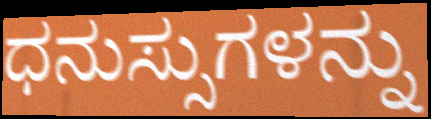
ಧನುಸ್ಸುಗಳನ್ನು